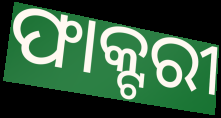
ଫାକ୍ଟରୀ